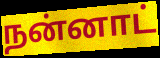
நன்னாட்